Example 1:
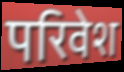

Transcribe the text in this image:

परिवेश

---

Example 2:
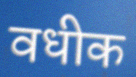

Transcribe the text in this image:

वधीक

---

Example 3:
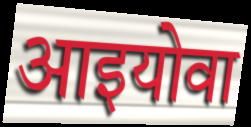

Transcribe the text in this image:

आइयोवा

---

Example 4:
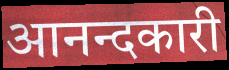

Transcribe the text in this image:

आनन्दकारी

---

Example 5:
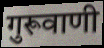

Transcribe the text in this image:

गुरूवाणी